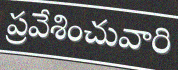
ప్రవేశించువారి